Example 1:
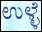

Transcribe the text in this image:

ಉಳ್ಳೆ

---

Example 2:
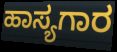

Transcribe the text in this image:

ಹಾಸ್ಯಗಾರ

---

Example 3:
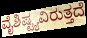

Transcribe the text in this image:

ವೈಶಿಷ್ಟ್ಯವಿರುತ್ತದೆ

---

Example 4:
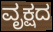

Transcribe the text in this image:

ವೃಕ್ಷದ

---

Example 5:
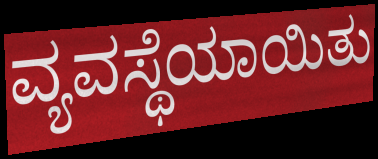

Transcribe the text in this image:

ವ್ಯವಸ್ಥೆಯಾಯಿತು